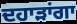
ਦਹਾੜਾਂਗਾ